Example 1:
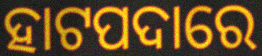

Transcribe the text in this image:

ହାଟପଦାରେ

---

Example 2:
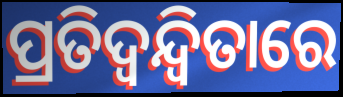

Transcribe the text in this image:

ପ୍ରତିଦ୍ୱନ୍ଦ୍ବିତାରେ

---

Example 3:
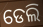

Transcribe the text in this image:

ଡେଲି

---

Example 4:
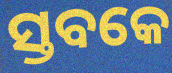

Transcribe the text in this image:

ସ୍ତବକେ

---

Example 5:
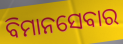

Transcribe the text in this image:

ବିମାନସେବାର